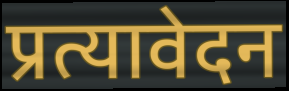
प्रत्यावेदन